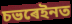
চভৰেইনত